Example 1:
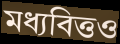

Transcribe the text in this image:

মধ্যবিত্তও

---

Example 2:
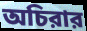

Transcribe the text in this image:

অচিরার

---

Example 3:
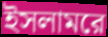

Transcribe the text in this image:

ইসলামরে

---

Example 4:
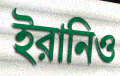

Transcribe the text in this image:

ইরানিও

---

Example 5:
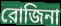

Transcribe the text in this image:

রোজিনা